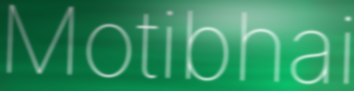
Motibhai